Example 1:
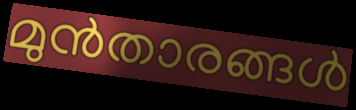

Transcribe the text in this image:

മുൻതാരങ്ങൾ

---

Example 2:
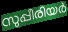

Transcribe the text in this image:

സുപ്പീരിയർ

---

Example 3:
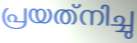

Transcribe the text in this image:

പ്രയത്‌നിച്ചു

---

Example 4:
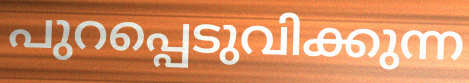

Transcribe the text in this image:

പുറപ്പെടുവിക്കുന്ന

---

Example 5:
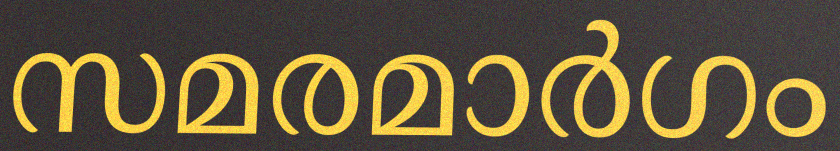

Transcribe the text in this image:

സമരമാർഗം